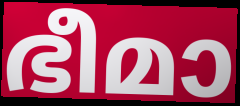
ഭീമാ